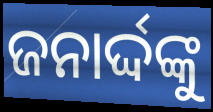
ଜନାର୍ଦ୍ଦଙ୍କୁ